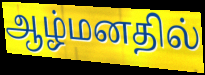
ஆழ்மனதில்